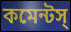
কমেন্টস্